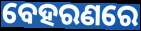
ବେହରଣରେ